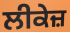
ਲੀਕੇਜ਼